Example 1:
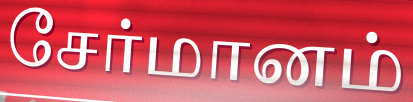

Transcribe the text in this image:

சேர்மானம்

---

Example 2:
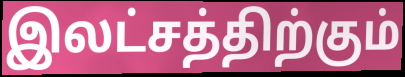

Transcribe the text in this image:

இலட்சத்திற்கும்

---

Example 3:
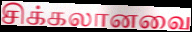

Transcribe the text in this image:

சிக்கலானவை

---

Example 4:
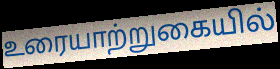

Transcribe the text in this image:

உரையாற்றுகையில்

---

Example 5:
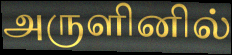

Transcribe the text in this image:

அருளினில்